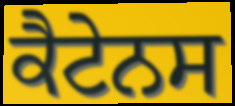
ਕੈਟੇਨਸ